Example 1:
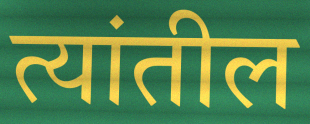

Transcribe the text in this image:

त्यांतील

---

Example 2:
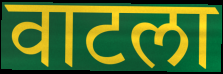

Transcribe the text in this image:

वाटला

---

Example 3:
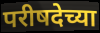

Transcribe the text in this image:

परीषदेच्या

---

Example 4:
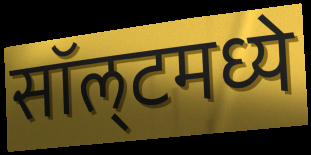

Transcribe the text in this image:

सॉल्टमध्ये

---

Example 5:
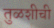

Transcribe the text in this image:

तुळशीची